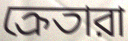
ক্রেতারা